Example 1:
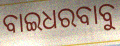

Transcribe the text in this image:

ବାଇଧରବାବୁ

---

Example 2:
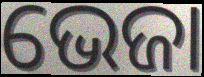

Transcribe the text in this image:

ଭେଜା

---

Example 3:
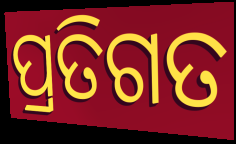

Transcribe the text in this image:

ପ୍ରତିଗତ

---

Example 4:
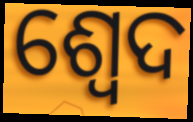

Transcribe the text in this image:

ଶ୍ଵେଦ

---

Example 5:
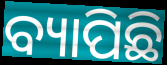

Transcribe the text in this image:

ବ୍ୟାପିଛି